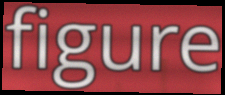
figure